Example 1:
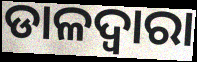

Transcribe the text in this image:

ଡାଳଦ୍ୱାରା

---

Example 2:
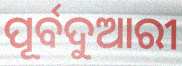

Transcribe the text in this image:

ପୂର୍ବଦୁଆରୀ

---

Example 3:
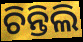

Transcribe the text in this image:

ଚିନ୍ତିଲି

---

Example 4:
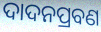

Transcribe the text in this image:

ଦାଦନପ୍ରବଣ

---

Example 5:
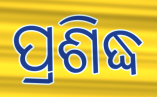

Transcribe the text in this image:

ପ୍ରଶିଦ୍ଧ